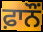
ਫ਼ਾਨੌਂ